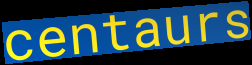
centaurs